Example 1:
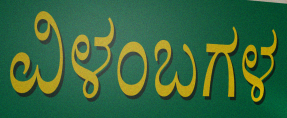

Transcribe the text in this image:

ವಿಳಂಬಗಳ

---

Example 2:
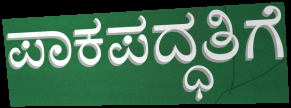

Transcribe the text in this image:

ಪಾಕಪದ್ಧತಿಗೆ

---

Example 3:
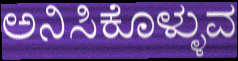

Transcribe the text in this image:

ಅನಿಸಿಕೊಳ್ಳುವ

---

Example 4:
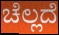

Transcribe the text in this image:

ಚೆಲ್ಲದೆ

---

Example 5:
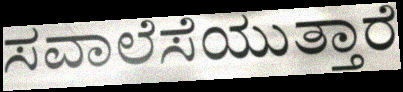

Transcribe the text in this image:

ಸವಾಲೆಸೆಯುತ್ತಾರೆ